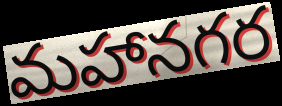
మహానగర